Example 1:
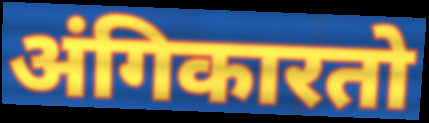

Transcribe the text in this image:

अंगिकारतो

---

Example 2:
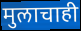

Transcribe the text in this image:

मुलाचाही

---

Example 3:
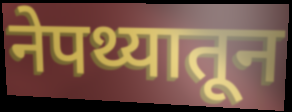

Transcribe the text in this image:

नेपथ्यातून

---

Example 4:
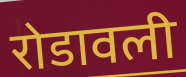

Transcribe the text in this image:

रोडावली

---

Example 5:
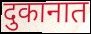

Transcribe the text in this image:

दुकानात